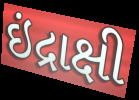
ઇંદ્રાક્ષી